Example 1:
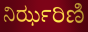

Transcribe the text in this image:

ನಿರ್ಝರಿಣಿ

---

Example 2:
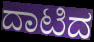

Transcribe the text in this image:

ದಾಟಿದ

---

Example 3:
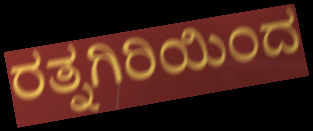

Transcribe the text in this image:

ರತ್ನಗಿರಿಯಿಂದ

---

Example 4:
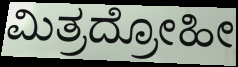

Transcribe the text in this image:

ಮಿತ್ರದ್ರೋಹೀ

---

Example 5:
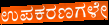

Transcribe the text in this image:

ಉಪಕರಣಗಳೇ